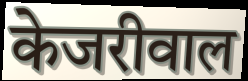
केजरीवाल